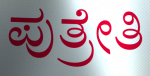
ಪುತ್ರೇತಿ